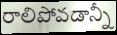
రాలిపోవడాన్నీ